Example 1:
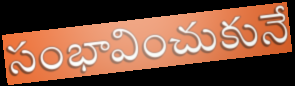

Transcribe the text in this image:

సంభావించుకునే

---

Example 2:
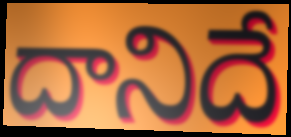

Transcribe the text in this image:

దానిదే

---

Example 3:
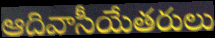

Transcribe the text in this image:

ఆదివాసీయేతరులు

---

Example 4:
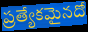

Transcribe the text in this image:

ప్రత్యేకమైనదో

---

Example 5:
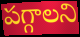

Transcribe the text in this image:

పగ్గాలని